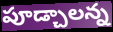
పూడ్చాలన్న